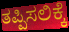
ತಪ್ಪಿಸಲಿಕ್ಕೆ